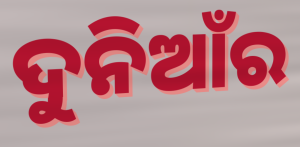
ଦୁନିଆଁର